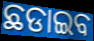
ଛଡାଇବ